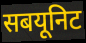
सबयूनिट